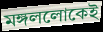
মঙ্গললোকেই